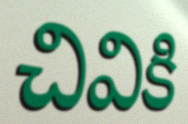
చివికి